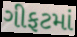
ગીફટમાં